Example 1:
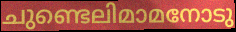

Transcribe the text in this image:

ചുണ്ടെലിമാമനോടു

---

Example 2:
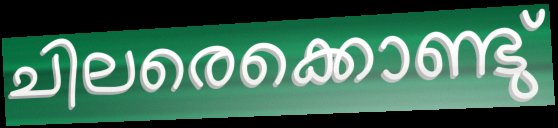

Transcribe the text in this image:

ചിലരെക്കൊണ്ടു്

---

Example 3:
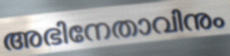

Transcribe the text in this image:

അഭിനേതാവിനും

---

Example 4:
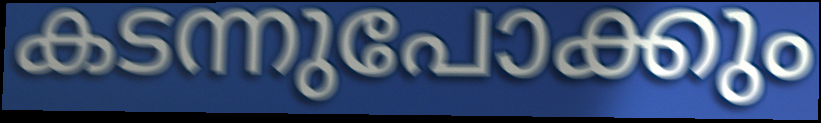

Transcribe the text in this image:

കടന്നുപോക്കും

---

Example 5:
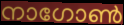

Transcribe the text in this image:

നാഗോൺ